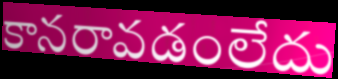
కానరావడంలేదు